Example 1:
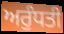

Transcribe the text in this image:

ਅਰੁੰਧਤੀ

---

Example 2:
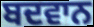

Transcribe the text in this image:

ਬਦਵਾਨ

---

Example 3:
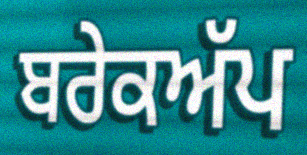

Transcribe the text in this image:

ਬਰੇਕਅੱਪ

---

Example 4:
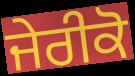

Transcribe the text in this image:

ਜੇਰੀਕੋ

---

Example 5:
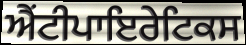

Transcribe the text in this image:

ਐਂਟੀਪਾਇਰੇਟਿਕਸ